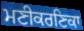
ਮਣੀਕਰਣਿਕਾ